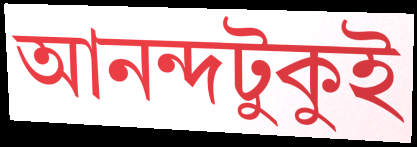
আনন্দটুকুই